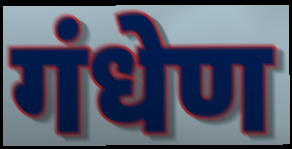
गंधेण